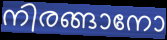
നിരങ്ങാനോ